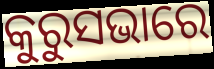
କୁରୁସଭାରେ